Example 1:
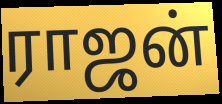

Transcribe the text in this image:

ராஜன்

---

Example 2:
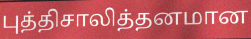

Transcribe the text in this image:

புத்திசாலித்தனமான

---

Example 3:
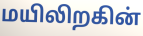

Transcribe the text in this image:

மயிலிறகின்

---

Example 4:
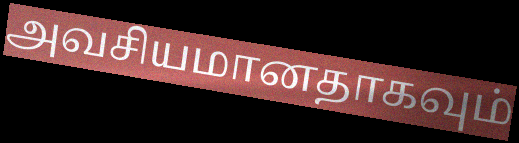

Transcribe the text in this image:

அவசியமானதாகவும்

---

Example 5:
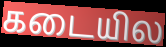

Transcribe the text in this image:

கடையில